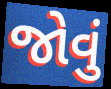
જોવું